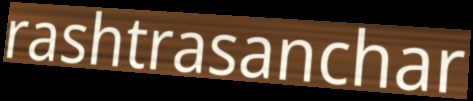
rashtrasanchar